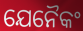
ଯେନୈକଂ